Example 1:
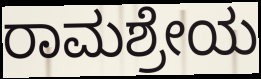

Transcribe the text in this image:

ರಾಮಶ್ರೇಯ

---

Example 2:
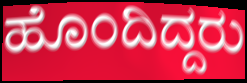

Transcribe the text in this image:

ಹೊಂದಿದ್ದರು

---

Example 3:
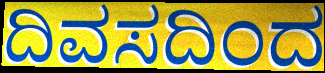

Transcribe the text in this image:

ದಿವಸದಿಂದ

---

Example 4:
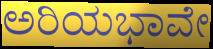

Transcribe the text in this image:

ಅರಿಯಭಾವೇ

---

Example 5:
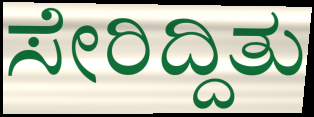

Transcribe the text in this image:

ಸೇರಿದ್ದಿತು